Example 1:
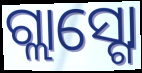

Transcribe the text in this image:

ଗ୍ଲାସ୍ଗୋ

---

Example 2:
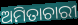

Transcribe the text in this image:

ଅମିତାଚାରୀ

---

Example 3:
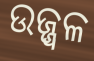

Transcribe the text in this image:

ଉଜ୍ଜ୍ବଳ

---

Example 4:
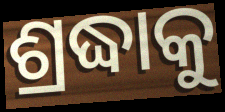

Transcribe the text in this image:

ଶ୍ରଦ୍ଧାକୁ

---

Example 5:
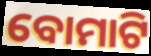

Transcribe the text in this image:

ବୋମାଟି